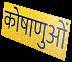
कोषाणुओं